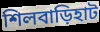
শিলবাড়িহাট